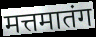
मत्तमातंग